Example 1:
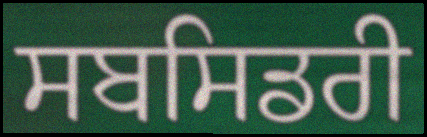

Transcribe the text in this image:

ਸਬਸਿਡਰੀ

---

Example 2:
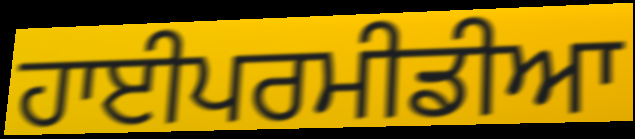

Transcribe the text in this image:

ਹਾਈਪਰਮੀਡੀਆ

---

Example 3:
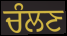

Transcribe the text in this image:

ਚੰਲਣ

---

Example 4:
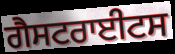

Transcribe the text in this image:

ਗੈਸਟਰਾਈਟਸ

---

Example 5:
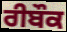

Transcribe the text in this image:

ਰੀਬੌਕ